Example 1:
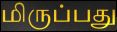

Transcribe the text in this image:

மிருப்பது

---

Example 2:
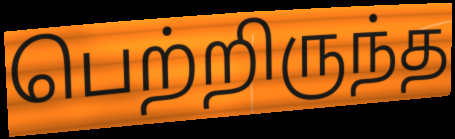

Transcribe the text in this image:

பெற்றிருந்த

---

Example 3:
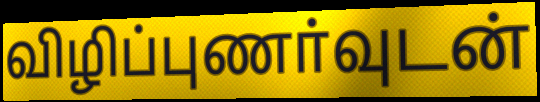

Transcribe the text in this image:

விழிப்புணர்வுடன்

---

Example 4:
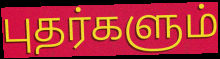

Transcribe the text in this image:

புதர்களும்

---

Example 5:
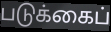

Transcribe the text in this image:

படுக்கைப்